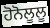
ਹੋਨੋਲੂਲੂ